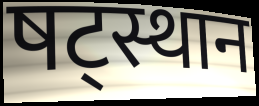
षट्स्थान